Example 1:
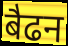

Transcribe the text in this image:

बैढन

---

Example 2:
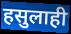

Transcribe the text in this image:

हसुलाही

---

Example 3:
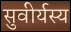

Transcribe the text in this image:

सुवीर्यस्य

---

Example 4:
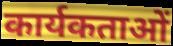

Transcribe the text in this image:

कार्यकताओं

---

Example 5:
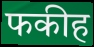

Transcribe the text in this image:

फकीह